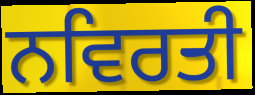
ਨਵਿਰਤੀ